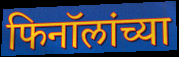
फिनॉलांच्या